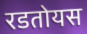
रडतोयस